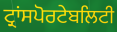
ਟ੍ਰਾਂਸਪੋਰਟੇਬਲਿਟੀ